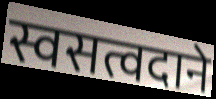
स्वसत्वदाने